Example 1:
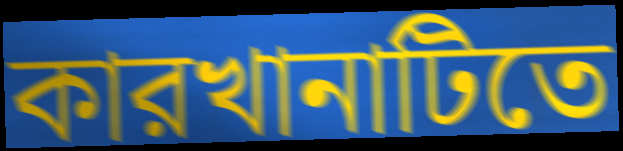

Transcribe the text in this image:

কারখানাটিতে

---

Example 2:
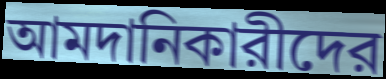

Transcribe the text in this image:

আমদানিকারীদের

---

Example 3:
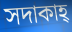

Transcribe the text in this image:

সদাকাহ্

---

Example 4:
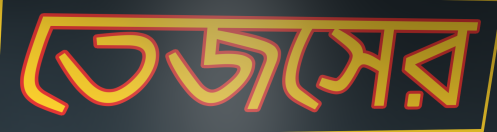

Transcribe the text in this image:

তেজসের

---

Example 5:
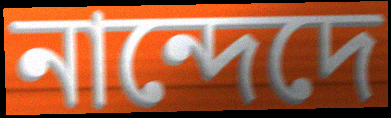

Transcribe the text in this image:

নান্দেদে